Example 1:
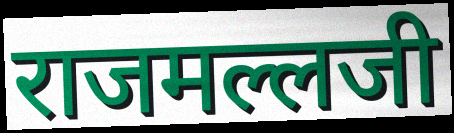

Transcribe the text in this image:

राजमल्लजी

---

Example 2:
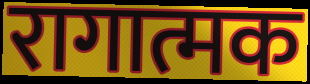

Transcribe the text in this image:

रागात्मक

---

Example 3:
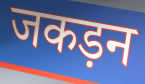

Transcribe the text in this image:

जकड़न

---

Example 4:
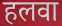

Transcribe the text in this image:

हलवा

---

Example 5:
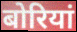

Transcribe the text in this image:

बोरियां